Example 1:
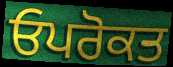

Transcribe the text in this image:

ਓਪਰੋਕਤ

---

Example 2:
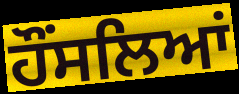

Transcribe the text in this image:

ਹੌਂਸਲਿਆਂ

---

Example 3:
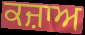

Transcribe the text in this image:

ਕਜ਼ਾਅ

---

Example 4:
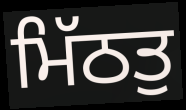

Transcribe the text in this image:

ਮਿੱਠਤੁ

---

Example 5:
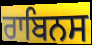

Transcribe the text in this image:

ਰਾਬਿਨਸ